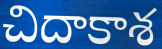
చిదాకాశ